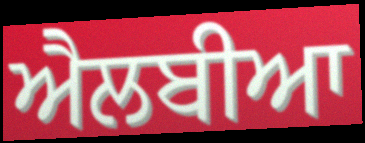
ਐਲਬੀਆ